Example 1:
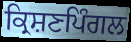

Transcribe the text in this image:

ਕ੍ਰਿਸ਼ਣਪਿੰਗਲ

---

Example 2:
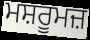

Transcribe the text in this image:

ਮਸ਼ਰੂਮਜ਼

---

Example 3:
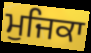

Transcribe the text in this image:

ਮੁਜਿਕਾ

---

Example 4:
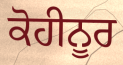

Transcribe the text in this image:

ਕੋਹੀਨੂਰ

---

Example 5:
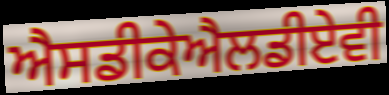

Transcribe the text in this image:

ਐਸਡੀਕੇਐਲਡੀਏਵੀ